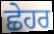
ਛੇਹਰ